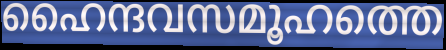
ഹൈന്ദവസമൂഹത്തെ